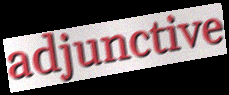
adjunctive